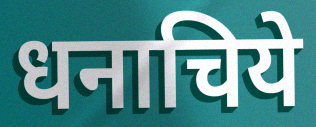
धनाचिये